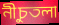
নীচুতলা